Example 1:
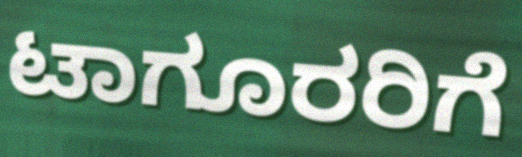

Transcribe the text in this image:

ಟಾಗೂರರಿಗೆ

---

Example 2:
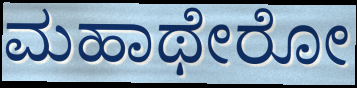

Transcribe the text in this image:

ಮಹಾಥೇರೋ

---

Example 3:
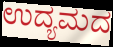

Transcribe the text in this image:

ಉದ್ಯಮದ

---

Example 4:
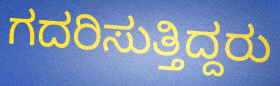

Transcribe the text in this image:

ಗದರಿಸುತ್ತಿದ್ದರು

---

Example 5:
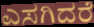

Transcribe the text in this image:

ಎಸಗಿದರೆ